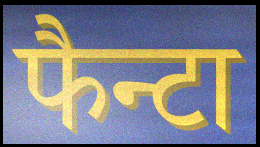
फैन्टा